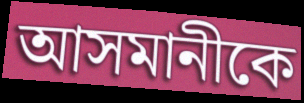
আসমানীকে